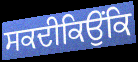
ਸਕਦੀਕਿਉਂਕਿ